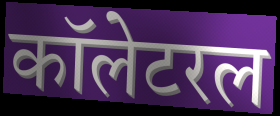
कॉलेटरल